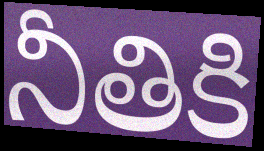
నీతికి